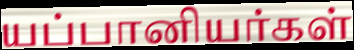
யப்பானியர்கள்